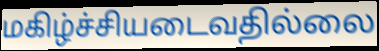
மகிழ்ச்சியடைவதில்லை